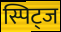
स्पिट्ज